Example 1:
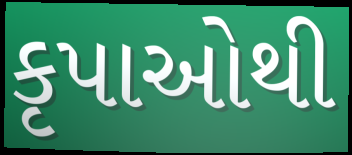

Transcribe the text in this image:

કૃપાઓથી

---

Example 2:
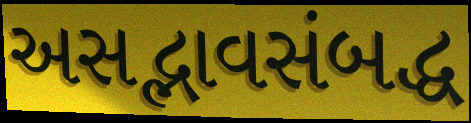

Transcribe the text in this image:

અસદ્ભાવસંબદ્ધ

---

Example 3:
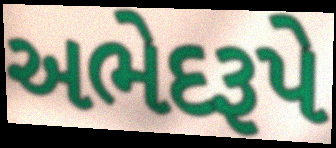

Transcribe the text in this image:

અભેદરૂપે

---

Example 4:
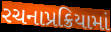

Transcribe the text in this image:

રચનાપ્રક્રિયામાં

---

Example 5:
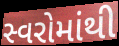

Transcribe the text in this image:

સ્વરોમાંથી